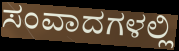
ಸಂವಾದಗಳಲ್ಲಿ